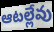
ఆటల్లేవు